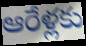
ఆరేళ్లకు